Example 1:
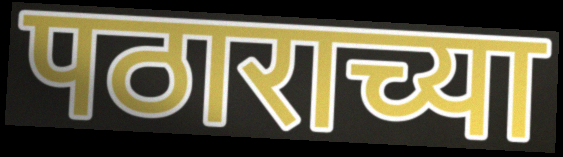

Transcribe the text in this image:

पठाराच्या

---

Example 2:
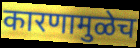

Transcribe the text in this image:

कारणामुळेच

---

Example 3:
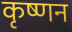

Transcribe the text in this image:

कृष्णन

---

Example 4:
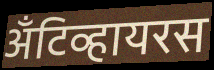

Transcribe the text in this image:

अँटिव्हायरस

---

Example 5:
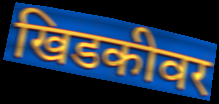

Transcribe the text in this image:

खिडकीवर